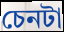
চেনটা